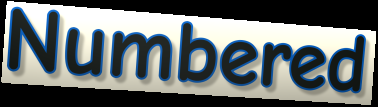
Numbered